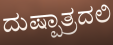
ದುಷ್ಪಾತ್ರದಲಿ